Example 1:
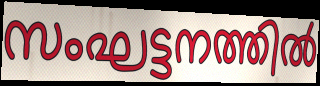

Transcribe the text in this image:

സംഘട്ടനത്തിൽ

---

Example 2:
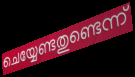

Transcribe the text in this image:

ചെയ്യേണ്ടതുണ്ടെന്ന്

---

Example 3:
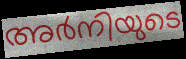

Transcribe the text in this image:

അർനിയുടെ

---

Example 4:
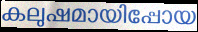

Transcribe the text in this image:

കലുഷമായിപ്പോയ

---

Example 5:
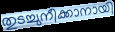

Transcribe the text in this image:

തുടച്ചുനീക്കാനായി